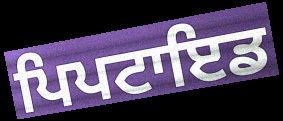
ਪਿਪਟਾਇਡ